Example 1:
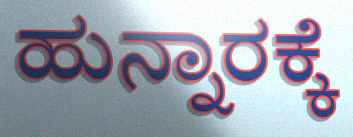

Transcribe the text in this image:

ಹುನ್ನಾರಕ್ಕೆ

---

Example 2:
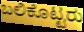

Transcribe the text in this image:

ಬಲಿಕೊಟ್ಟರು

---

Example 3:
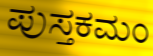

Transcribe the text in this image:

ಪುಸ್ತಕಮಂ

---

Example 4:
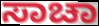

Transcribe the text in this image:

ಸಾಚಾ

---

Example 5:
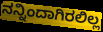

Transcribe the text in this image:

ನನ್ನಿಂದಾಗಿರಲಿಲ್ಲ